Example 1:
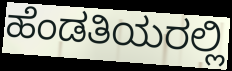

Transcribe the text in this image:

ಹೆಂಡತಿಯರಲ್ಲಿ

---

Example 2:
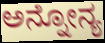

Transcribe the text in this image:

ಅನ್ನೋನ್ಯ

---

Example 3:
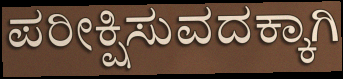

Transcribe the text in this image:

ಪರೀಕ್ಷಿಸುವದಕ್ಕಾಗಿ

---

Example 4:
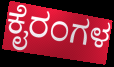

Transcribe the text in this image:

ಕೈರಂಗಳ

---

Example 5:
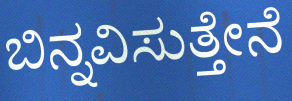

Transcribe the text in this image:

ಬಿನ್ನವಿಸುತ್ತೇನೆ